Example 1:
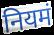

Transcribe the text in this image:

नियमं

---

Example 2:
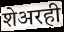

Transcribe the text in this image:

शेअरही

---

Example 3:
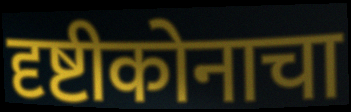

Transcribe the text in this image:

दृष्टीकोनाचा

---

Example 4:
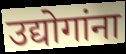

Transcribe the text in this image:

उद्योगांना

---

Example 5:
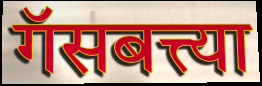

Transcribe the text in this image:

गॅसबत्त्या